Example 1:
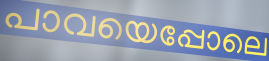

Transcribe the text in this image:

പാവയെപ്പോലെ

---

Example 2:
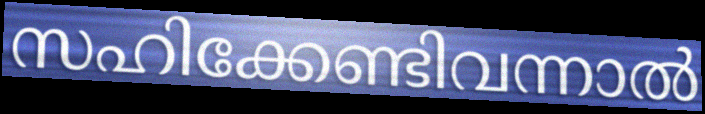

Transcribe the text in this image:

സഹിക്കേണ്ടിവന്നാൽ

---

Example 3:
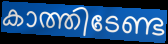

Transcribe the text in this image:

കാത്തിടേണ്ട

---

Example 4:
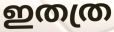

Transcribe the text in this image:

ഇതത്ര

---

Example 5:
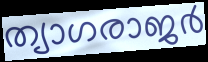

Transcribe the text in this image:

ത്യാഗരാജർ